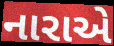
નારાએ